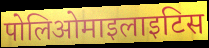
पोलिओमाइलाइटिस